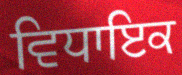
ਵਿਧਾਇਕ